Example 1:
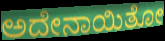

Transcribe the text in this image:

ಅದೇನಾಯಿತೋ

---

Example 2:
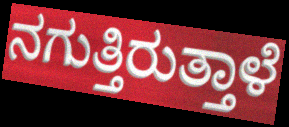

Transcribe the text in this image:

ನಗುತ್ತಿರುತ್ತಾಳೆ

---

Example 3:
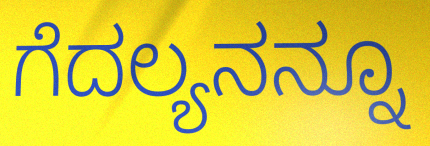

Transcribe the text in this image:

ಗೆದಲ್ಯನನ್ನೂ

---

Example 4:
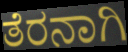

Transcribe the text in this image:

ತೆರನಾಗಿ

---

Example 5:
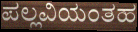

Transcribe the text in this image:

ಪಲ್ಲವಿಯಂತಹ